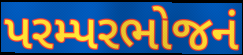
પરમ્પરભોજનં